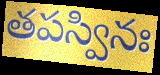
తపస్వినః